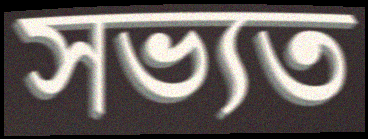
সভ্যত